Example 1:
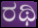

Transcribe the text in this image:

ರಥಿ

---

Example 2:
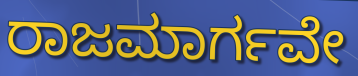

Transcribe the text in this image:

ರಾಜಮಾರ್ಗವೇ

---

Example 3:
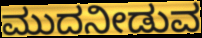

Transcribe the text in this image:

ಮುದನೀಡುವ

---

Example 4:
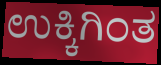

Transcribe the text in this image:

ಉಕ್ಕಿಗಿಂತ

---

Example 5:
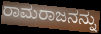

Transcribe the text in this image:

ರಾಮರಾಜನನ್ನು